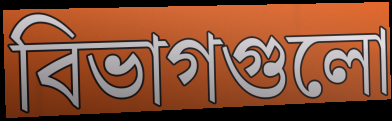
বিভাগগুলো